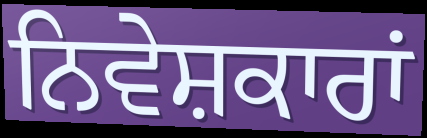
ਨਿਵੇਸ਼ਕਾਰਾਂ